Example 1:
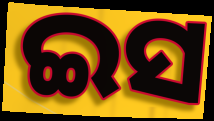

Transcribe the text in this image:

ଇସ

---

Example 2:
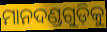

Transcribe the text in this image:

ମାନଦଣ୍ଡଗୁଡ଼ିକୁ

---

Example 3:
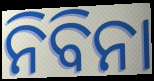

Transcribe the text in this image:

ନିବିନା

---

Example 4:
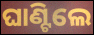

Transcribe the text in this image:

ଘାଣ୍ଟିଲେ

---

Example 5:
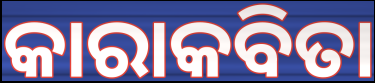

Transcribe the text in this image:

କାରାକବିତା